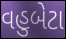
વહુબેટા